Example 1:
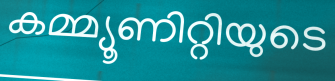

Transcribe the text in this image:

കമ്മ്യൂണിറ്റിയുടെ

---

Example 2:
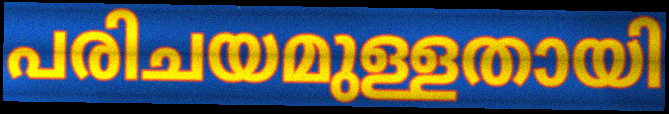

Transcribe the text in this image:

പരിചയമുള്ളതായി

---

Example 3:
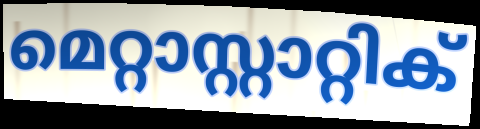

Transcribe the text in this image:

മെറ്റാസ്റ്റാറ്റിക്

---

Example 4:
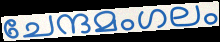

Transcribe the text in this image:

ചേന്ദമംഗലം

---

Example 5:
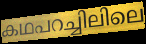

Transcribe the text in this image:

കഥപറച്ചിലിലെ